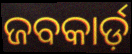
ଜବକାର୍ଡ଼